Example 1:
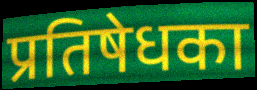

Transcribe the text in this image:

प्रतिषेधका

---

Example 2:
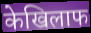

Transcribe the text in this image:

केखिलाफ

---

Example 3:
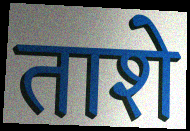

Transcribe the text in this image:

ताशे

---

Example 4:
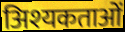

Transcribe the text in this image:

अिश्यकताओं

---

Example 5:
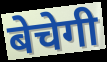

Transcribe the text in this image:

बेचेगी